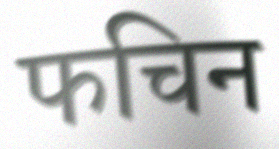
फचिन